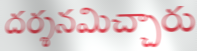
దర్శనమిచ్చారు